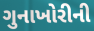
ગુનાખોરીની